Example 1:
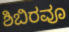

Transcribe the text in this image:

ಶಿಬಿರವೂ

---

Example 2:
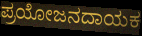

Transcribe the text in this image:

ಪ್ರಯೋಜನದಾಯಕ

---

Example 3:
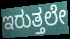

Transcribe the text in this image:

ಇರುತ್ತಲೇ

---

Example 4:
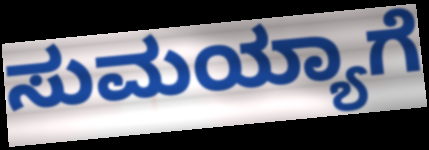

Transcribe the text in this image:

ಸುಮಯ್ಯಾಗೆ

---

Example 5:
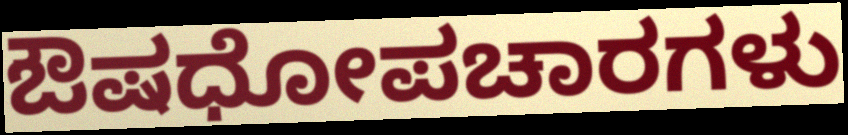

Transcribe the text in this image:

ಔಷಧೋಪಚಾರಗಳು